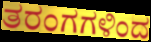
ತರಂಗಗಳಿಂದ